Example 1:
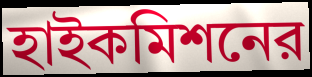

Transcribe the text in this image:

হাইকমিশনের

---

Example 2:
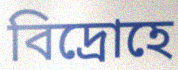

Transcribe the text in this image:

বিদ্রোহে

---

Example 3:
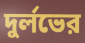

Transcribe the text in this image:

দুর্লভের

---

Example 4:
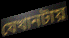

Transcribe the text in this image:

যেখানটায়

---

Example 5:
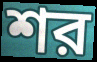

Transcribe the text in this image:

শর